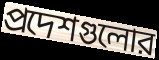
প্রদেশগুলোর